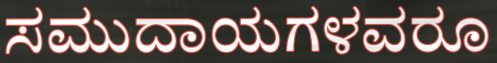
ಸಮುದಾಯಗಳವರೂ